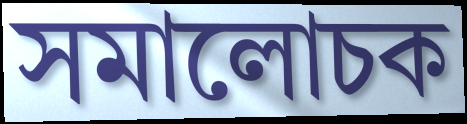
সমালোচক